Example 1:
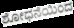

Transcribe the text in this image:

ಶೋಧನೆಯಿಂದ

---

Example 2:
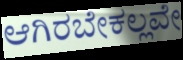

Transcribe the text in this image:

ಆಗಿರಬೇಕಲ್ಲವೇ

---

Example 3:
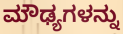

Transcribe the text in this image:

ಮೌಢ್ಯಗಳನ್ನು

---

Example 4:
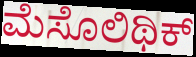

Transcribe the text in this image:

ಮೆಸೊಲಿಥಿಕ್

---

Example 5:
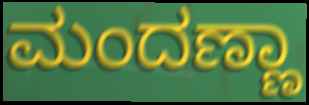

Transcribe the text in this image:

ಮಂದಣ್ಣಾ